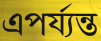
এপর্য্যন্ত